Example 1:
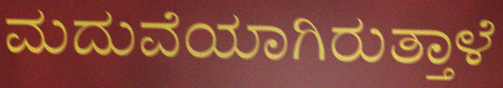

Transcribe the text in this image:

ಮದುವೆಯಾಗಿರುತ್ತಾಳೆ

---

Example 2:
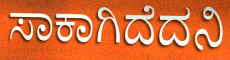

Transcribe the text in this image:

ಸಾಕಾಗಿದೆದನಿ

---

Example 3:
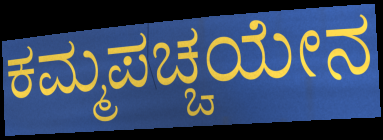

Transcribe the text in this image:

ಕಮ್ಮಪಚ್ಚಯೇನ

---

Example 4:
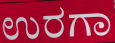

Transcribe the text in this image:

ಉರಗಾ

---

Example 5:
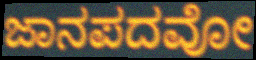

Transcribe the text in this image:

ಜಾನಪದವೋ